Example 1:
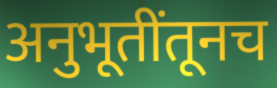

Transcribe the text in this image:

अनुभूतींतूनच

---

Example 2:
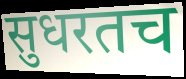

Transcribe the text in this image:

सुधरतच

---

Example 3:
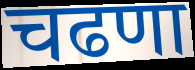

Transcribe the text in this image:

चढणा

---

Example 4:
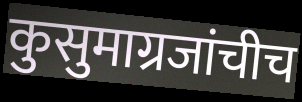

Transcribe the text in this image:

कुसुमाग्रजांचीच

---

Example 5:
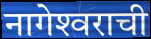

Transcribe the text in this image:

नागेश्‍वराची